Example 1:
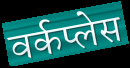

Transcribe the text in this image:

वर्कप्लेस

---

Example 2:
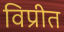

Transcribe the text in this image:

विप्रीत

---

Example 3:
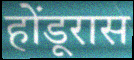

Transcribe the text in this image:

होंडूरास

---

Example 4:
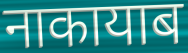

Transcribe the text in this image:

नाकायाब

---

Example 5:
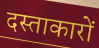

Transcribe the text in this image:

दस्ताकारों